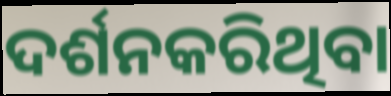
ଦର୍ଶନକରିଥିବା